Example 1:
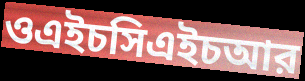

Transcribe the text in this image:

ওএইচসিএইচআর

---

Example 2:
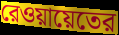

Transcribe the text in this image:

রেওয়ায়েতের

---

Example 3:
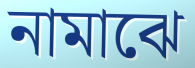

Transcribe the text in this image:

নামাঝে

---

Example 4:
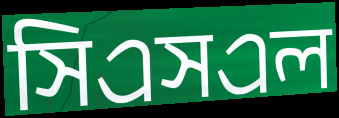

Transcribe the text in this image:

সিএসএল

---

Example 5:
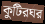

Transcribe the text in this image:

কুটিরঘর